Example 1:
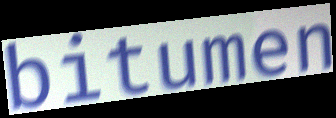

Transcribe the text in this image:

bitumen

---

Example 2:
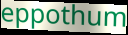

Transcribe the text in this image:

eppothum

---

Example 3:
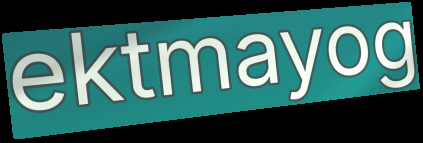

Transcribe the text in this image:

ektmayog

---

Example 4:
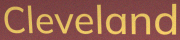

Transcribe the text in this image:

Cleveland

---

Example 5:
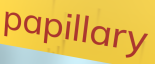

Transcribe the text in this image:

papillary